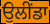
ਉਲੀਂਡਾ